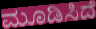
ಮೂಡಿಸಿದೆ